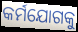
କର୍ମଯୋଗକୁ